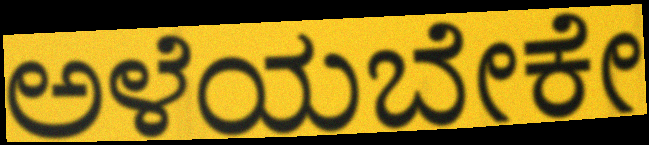
ಅಳೆಯಬೇಕೇ